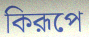
কিরূপে